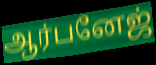
ஆர்பனேஜ்